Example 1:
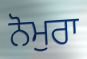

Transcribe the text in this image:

ਨੋਮੁਰਾ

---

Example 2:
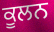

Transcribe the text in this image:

ਕੂਲਨ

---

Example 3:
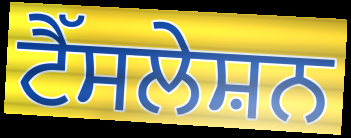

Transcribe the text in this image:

ਟੈੱਸਲੇਸ਼ਨ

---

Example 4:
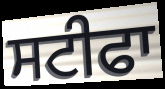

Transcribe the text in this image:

ਸਟੀਫਾ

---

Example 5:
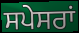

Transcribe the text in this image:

ਸਪੇਸਰਾਂ